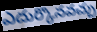
ఎదుర్కొనవచ్చు